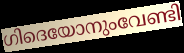
ഗിദെയോനുംവേണ്ടി